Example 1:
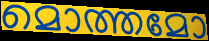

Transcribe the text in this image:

മൊത്തമോ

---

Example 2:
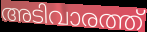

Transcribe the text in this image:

അടിവാരത്ത്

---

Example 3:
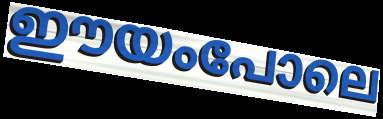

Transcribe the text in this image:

ഈയംപോലെ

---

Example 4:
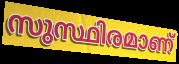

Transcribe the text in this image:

സുസ്ഥിരമാണ്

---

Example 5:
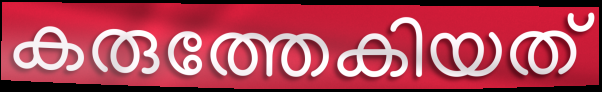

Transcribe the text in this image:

കരുത്തേകിയത്